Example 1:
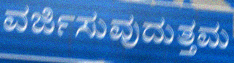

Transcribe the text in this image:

ವರ್ಜಿಸುವುದುತ್ತಮ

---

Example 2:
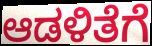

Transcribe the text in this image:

ಆಡಳಿತೆಗೆ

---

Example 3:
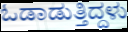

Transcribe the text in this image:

ಓಡಾಡುತ್ತಿದ್ದಳು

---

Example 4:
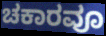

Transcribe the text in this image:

ಚಕಾರವೂ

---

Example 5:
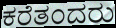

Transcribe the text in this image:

ಕರೆತಂದರು